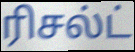
ரிசல்ட்